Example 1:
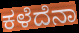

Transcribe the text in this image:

ಕಳೆದೆನಾ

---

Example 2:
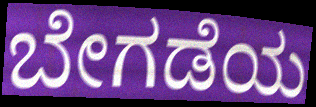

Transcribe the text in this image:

ಬೇಗಡೆಯ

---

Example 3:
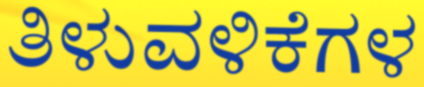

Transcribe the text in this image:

ತಿಳುವಳಿಕೆಗಳ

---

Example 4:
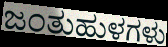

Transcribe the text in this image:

ಜಂತುಹುಳಗಳು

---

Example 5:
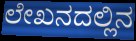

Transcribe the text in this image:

ಲೇಖನದಲ್ಲಿನ